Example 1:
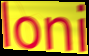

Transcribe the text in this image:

loni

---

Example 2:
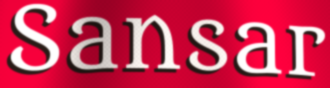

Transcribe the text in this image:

Sansar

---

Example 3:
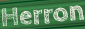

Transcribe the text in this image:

Herron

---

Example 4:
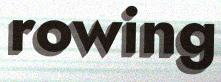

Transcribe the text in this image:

rowing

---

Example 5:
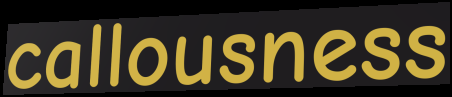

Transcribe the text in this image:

callousness